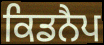
ਕਿਡਨੈਪ